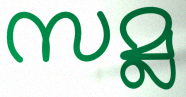
സമ്ല